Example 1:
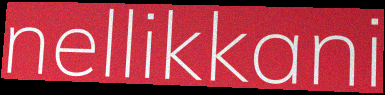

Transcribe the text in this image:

nellikkani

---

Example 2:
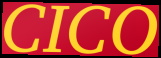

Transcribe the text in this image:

CICO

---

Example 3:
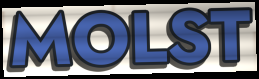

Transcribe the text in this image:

MOLST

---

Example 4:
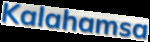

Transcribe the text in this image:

Kalahamsa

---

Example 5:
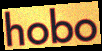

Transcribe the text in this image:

hobo